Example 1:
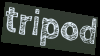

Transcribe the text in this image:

tripod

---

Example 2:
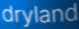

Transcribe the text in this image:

dryland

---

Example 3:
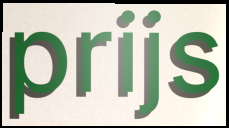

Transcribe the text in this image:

prijs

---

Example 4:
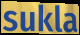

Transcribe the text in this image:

sukla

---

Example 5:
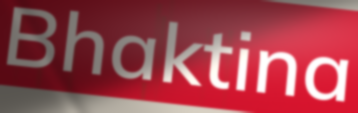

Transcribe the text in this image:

Bhaktina